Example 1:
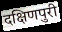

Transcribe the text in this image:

दक्षिणपुरी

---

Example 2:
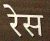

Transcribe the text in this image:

रेस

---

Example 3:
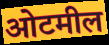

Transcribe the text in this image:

ओटमील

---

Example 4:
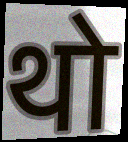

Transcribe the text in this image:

थो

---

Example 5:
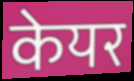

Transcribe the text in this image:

केयर